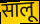
सालू